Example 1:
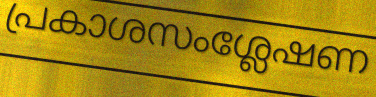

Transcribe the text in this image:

പ്രകാശസംശ്ലേഷണ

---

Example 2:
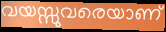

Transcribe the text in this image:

വയസ്സുവരെയാണ്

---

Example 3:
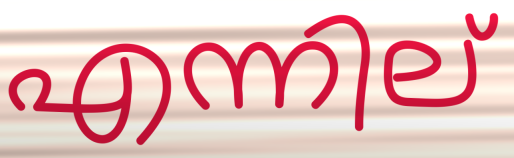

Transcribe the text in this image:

എന്നില്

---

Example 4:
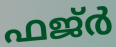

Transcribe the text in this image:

ഫജ്ർ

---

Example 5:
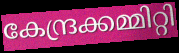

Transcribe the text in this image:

കേന്ദ്രക്കമ്മിറ്റി